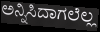
ಅನ್ನಿಸಿದಾಗಲೆಲ್ಲ